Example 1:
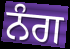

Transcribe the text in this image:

ਨੰਗ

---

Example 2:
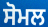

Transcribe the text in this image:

ਸੋਮਲ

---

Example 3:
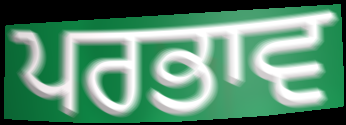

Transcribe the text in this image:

ਪਰਭਾਵ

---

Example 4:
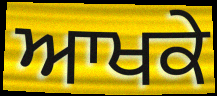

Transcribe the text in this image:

ਆਖਕੇ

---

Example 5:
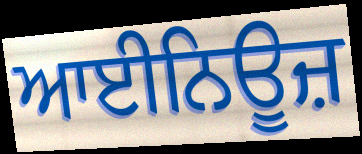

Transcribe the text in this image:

ਆਈਨਿਊਜ਼